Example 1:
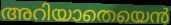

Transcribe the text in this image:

അറിയാതെയെൻ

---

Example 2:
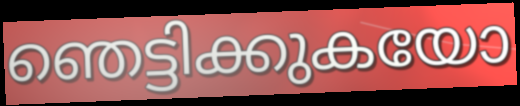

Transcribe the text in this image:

ഞെട്ടിക്കുകയോ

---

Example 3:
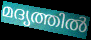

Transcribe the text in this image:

മദ്യത്തിൽ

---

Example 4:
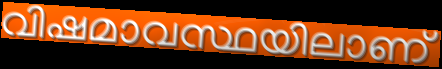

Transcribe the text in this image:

വിഷമാവസ്ഥയിലാണ്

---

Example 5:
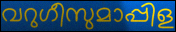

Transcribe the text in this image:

വറുഗീസുമാപ്പിള